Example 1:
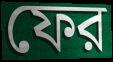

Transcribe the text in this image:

ফের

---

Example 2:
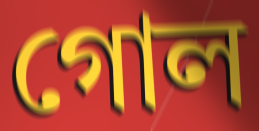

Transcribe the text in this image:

গোল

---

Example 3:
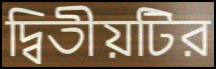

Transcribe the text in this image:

দ্বিতীয়টির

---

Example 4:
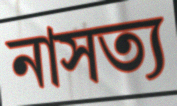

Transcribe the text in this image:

নাসত্য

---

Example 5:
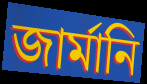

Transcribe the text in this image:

জার্মানি